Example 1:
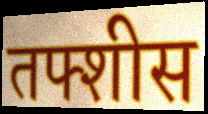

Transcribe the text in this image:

तफ्शीस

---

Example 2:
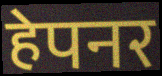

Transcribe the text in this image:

हेपनर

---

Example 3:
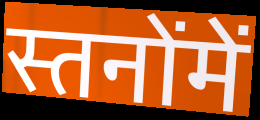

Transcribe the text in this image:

स्तनोंमें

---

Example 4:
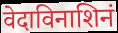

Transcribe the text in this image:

वेदाविनाशिनं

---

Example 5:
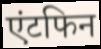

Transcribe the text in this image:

एंटफिन